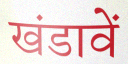
खंडावें